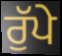
ਰੁੱਪੇ